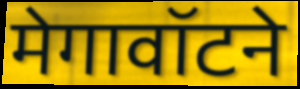
मेगावॉटने